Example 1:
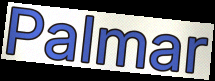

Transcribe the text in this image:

Palmar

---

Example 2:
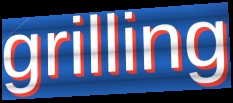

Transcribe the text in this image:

grilling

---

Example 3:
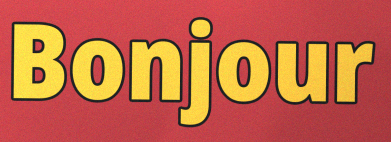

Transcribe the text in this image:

Bonjour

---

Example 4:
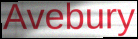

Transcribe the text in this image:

Avebury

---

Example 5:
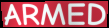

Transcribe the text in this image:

ARMED